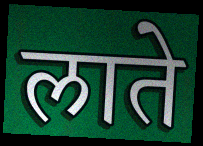
लाते